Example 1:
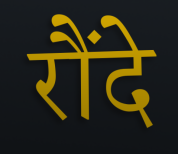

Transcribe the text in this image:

रौंदे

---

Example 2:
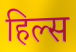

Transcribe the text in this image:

हिल्स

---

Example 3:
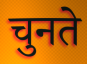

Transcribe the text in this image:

चुनते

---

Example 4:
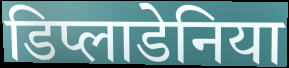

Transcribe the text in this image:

डिप्लाडेनिया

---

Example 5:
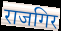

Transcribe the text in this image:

राजगिर